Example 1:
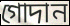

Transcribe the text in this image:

গোদান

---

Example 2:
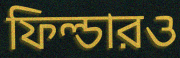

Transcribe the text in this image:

ফিল্ডারও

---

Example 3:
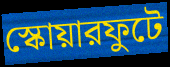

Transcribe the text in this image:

স্কোয়ারফুটে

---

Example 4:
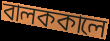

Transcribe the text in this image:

বালককালে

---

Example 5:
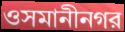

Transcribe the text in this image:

ওসমানীনগর